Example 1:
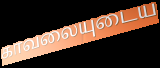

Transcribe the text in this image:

காவலையுடைய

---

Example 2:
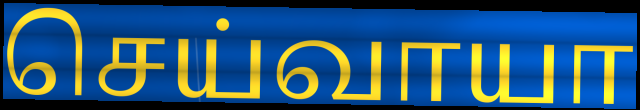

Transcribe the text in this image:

செய்வாயா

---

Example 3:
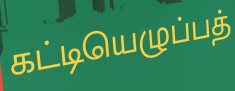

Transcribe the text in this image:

கட்டியெழுப்பத்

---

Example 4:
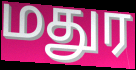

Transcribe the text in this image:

மதுர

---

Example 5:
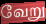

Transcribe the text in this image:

வேறு